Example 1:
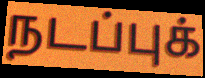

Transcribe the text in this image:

நடப்புக்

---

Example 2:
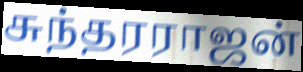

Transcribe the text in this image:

சுந்தரராஜன்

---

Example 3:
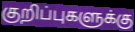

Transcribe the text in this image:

குறிப்புகளுக்கு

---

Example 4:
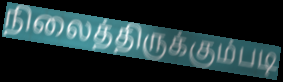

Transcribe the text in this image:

நிலைத்திருக்கும்படி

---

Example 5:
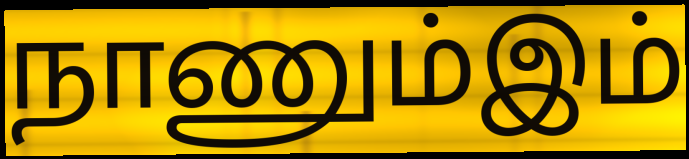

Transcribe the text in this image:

நாணும்இம்